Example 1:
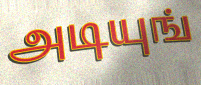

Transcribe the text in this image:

அடியுங்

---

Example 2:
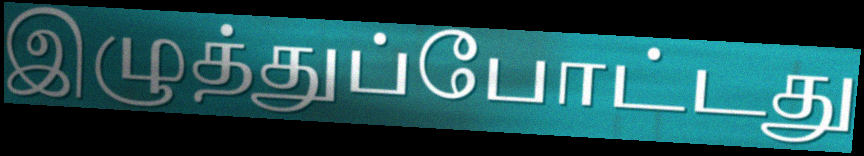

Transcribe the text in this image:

இழுத்துப்போட்டது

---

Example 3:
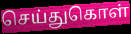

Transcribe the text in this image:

செய்துகொள்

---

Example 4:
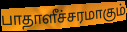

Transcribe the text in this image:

பாதாளீச்சரமாகும்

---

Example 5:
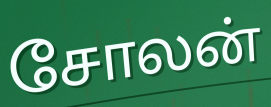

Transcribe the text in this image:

சோலன்